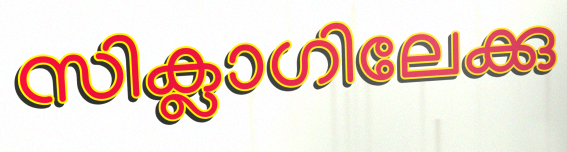
സിക്ലാഗിലേക്കു